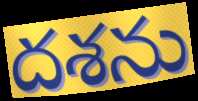
దశను